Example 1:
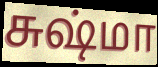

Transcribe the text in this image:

சுஷ்மா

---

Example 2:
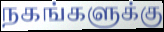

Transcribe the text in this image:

நகங்களுக்கு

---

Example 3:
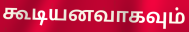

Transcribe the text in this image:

கூடியனவாகவும்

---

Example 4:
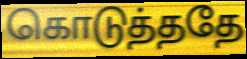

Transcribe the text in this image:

கொடுத்ததே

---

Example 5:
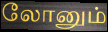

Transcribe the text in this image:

லோனும்